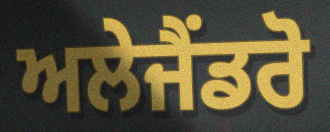
ਅਲੇਜੈਂਡਰੋ